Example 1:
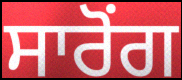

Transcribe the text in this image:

ਸਾਰੋਂਗ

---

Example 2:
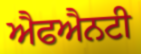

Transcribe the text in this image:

ਐਫਐਨਟੀ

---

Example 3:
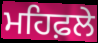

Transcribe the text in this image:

ਮਹਿਫ਼ਲੇ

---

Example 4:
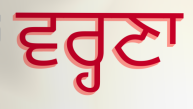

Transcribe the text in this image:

ਵਰ੍ਹਣਾ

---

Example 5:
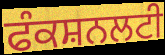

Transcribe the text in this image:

ਫੰਕਸ਼ਨਲਟੀ